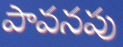
పావనపు